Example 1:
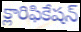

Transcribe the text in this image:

క్లారిఫికేషన్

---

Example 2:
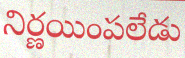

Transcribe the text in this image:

నిర్ణయింపలేడు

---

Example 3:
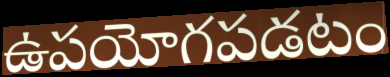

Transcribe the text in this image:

ఉపయోగపడటం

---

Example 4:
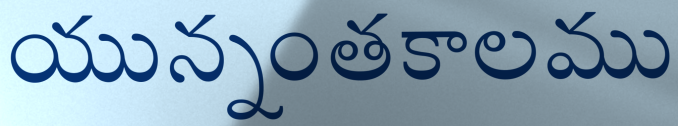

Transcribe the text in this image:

యున్నంతకాలము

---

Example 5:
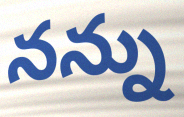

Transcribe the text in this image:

నన్ను